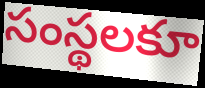
సంస్థలకూ